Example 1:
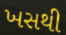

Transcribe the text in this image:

ખસથી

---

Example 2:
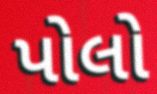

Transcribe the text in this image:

પોલો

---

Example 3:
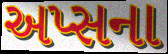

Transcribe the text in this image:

અપ્સના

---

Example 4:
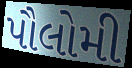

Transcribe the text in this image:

પૌલોમી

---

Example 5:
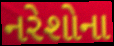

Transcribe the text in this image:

નરેશોના